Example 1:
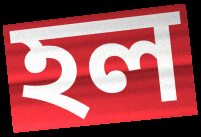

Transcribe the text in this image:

হল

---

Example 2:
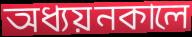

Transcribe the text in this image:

অধ্যয়নকালে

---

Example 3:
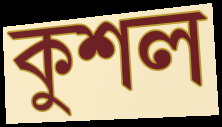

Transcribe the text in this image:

কুশল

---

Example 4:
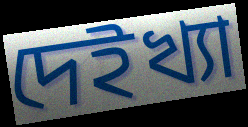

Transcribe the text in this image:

দেইখ্যা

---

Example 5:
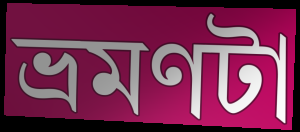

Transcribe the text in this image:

ভ্রমণটা